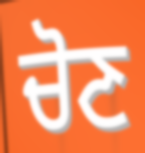
ਚੋਣ